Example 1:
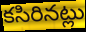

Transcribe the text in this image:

కసిరినట్లు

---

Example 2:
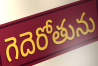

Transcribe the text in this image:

గెదెరోతును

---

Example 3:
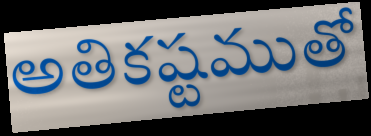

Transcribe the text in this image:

అతికష్టముతో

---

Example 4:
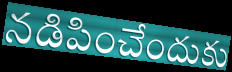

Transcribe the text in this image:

నడిపించేందుకు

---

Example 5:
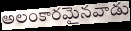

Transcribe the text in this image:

అలంకారమైనవాడు